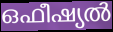
ഒഫീഷ്യൽ